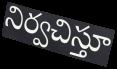
నిర్వచిస్తూ